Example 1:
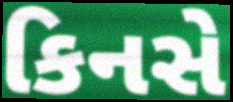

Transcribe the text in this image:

કિનસે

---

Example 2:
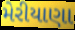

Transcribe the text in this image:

મેરીયાણા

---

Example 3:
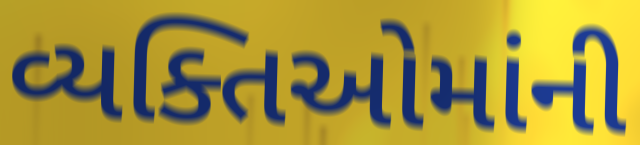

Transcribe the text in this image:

વ્યક્તિઓમાંની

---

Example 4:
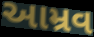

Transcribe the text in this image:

આમ્રવ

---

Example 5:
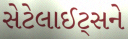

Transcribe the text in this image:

સેટેલાઈટ્સને